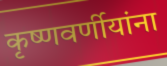
कृष्णवर्णीयांना